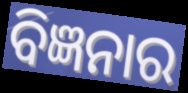
ବିଜ୍ଞନାର